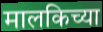
मालकिच्या